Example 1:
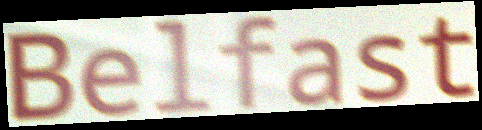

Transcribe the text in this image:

Belfast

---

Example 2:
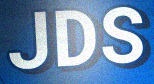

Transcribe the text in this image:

JDS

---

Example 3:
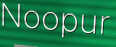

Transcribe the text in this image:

Noopur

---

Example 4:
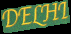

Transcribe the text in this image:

DELHI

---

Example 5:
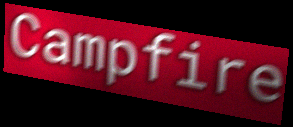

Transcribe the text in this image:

Campfire